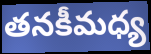
తనకీమధ్య